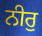
ਨੀਰੁ